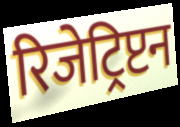
रिजेट्रिप्टन